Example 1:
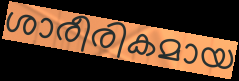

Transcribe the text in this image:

ശാരീരികമായ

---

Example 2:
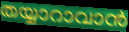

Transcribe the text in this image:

തയ്യാറാവാൻ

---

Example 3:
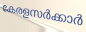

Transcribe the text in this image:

കേരളസർക്കാർ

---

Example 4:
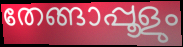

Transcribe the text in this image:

തേങ്ങാപ്പൂളും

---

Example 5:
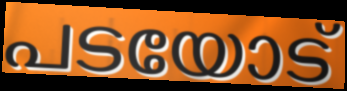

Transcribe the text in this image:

പടയോട്